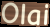
Olai